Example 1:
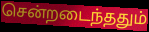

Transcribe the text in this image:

சென்றடைந்ததும்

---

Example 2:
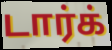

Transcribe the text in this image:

டார்க்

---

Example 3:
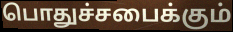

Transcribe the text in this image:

பொதுச்சபைக்கும்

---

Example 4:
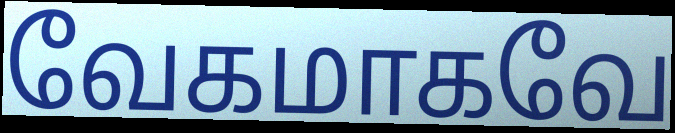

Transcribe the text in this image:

வேகமாகவே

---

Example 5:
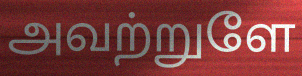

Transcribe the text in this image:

அவற்றுளே